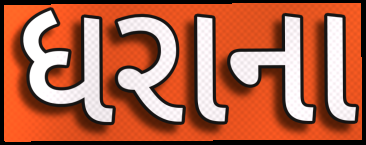
ધરાના